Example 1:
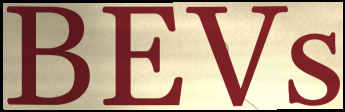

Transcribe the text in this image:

BEVs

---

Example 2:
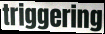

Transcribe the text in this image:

triggering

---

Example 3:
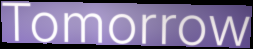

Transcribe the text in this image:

Tomorrow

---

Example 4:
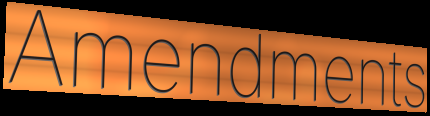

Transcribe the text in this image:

Amendments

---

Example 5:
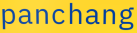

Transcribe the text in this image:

panchang